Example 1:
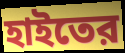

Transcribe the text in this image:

হাইতের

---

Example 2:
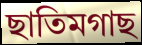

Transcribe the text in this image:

ছাতিমগাছ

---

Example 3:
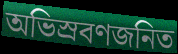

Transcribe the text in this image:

অভিস্রবণজনিত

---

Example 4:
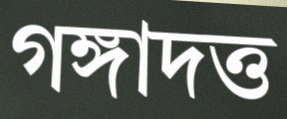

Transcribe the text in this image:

গঙ্গাদত্ত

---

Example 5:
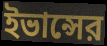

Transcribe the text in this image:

ইভান্সের